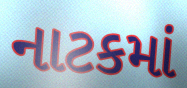
નાટકમાં